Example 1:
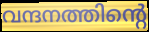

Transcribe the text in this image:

വന്ദനത്തിന്റെ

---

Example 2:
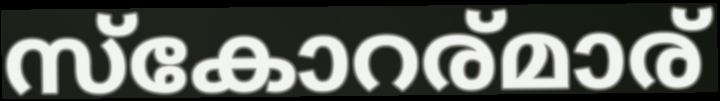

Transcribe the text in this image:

സ്കോറര്മാര്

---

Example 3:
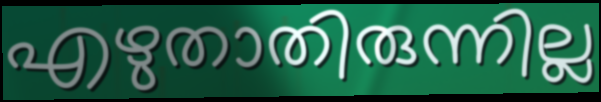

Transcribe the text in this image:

എഴുതാതിരുന്നില്ല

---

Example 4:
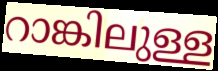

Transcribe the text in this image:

റാങ്കിലുള്ള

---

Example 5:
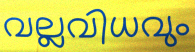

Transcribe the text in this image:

വല്ലവിധവും